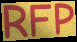
RFP